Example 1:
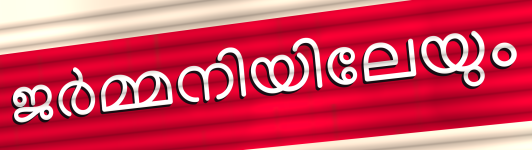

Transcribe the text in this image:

ജർമ്മനിയിലേയും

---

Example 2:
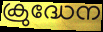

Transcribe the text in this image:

ക്രുദ്ധേന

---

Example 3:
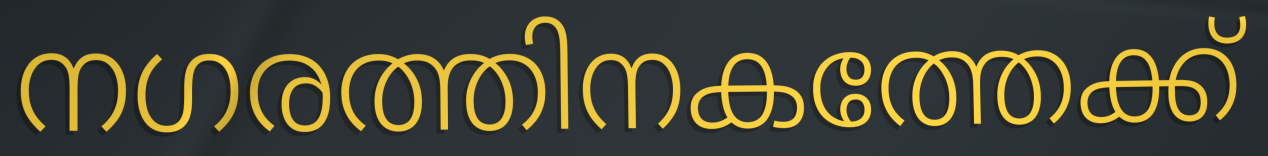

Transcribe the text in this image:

നഗരത്തിനകത്തേക്ക്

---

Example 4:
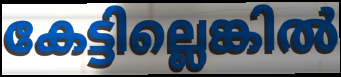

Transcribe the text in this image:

കേട്ടില്ലെങ്കിൽ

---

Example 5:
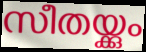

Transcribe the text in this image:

സീതയ്ക്കും